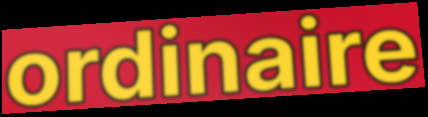
ordinaire